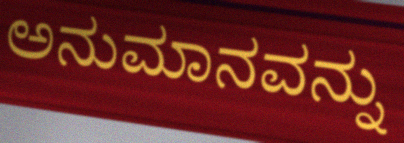
ಅನುಮಾನವನ್ನು